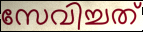
സേവിച്ചത്